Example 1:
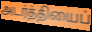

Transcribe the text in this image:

அடர்த்தியைப்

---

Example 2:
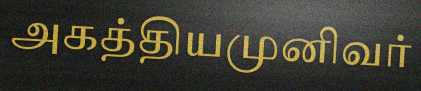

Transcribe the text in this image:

அகத்தியமுனிவர்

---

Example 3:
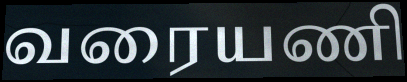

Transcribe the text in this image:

வரையணி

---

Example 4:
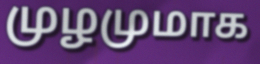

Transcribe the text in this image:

முழமுமாக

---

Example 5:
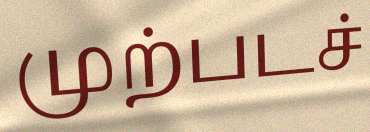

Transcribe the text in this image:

முற்படச்